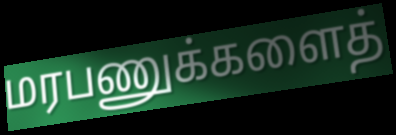
மரபணுக்களைத்